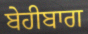
ਬੇਹੀਬਾਗ